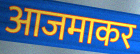
आजमाकर